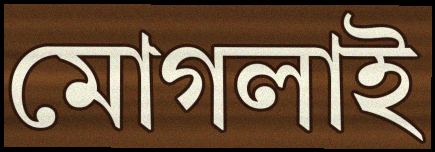
মোগলাই